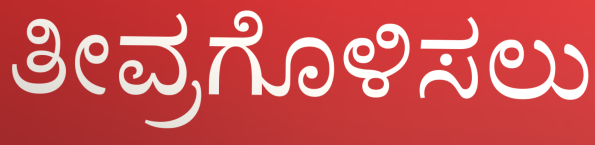
ತೀವ್ರಗೊಳಿಸಲು